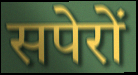
सपेरों